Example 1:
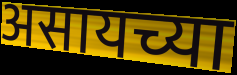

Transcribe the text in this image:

असायच्या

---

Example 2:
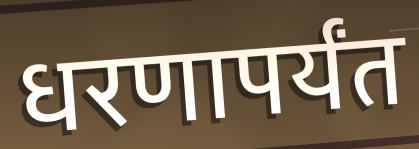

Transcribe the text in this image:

धरणापर्यंत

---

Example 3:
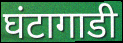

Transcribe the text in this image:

घंटागाडी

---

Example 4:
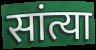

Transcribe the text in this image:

सांत्या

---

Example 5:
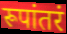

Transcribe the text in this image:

रूपांतरं